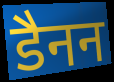
डैनन